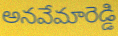
అనవేమారెడ్డి